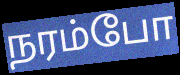
நரம்போ